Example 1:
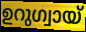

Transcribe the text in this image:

ഉറുഗ്വായ്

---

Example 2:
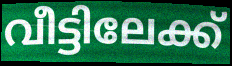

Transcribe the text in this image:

വീട്ടിലേക്ക്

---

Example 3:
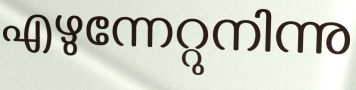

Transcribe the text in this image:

എഴുന്നേറ്റുനിന്നു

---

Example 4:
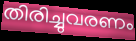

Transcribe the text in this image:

തിരിച്ചുവരണം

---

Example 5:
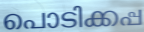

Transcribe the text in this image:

പൊടിക്കപ്പ